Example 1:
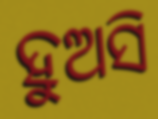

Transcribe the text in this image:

ହୁଅସି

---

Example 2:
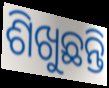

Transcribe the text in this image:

ଶିଖୁଛନ୍ତି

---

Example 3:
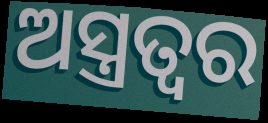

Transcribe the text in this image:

ଅସ୍ତ୍ରତ୍ୱର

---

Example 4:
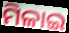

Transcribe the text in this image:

ମିଳାଇ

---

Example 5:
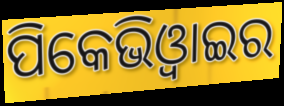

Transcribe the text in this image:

ପିକେଭିଓ୍ବାଇର